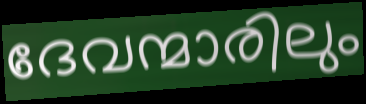
ദേവന്മാരിലും